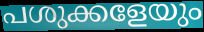
പശുക്കളേയും